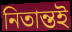
নিতান্তই